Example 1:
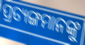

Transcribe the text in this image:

ପ୍ରତ୍ୟଙ୍ଗମାନଙ୍କୁ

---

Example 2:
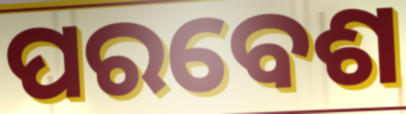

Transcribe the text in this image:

ପରବେଶ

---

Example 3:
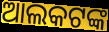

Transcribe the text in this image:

ଆଲକଟଙ୍କ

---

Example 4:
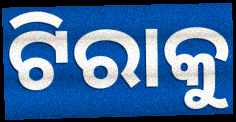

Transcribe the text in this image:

ଟିରାକୁ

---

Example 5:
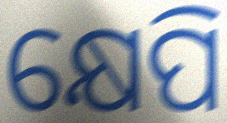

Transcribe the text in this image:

କ୍ଷେପି